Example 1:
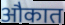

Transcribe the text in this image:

औकात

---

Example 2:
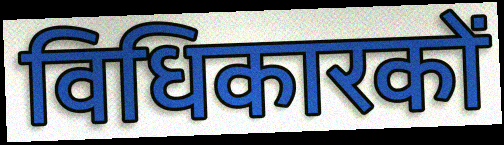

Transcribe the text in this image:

विधिकारकों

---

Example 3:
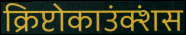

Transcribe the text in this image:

क्रिप्टोकाउंक्शंस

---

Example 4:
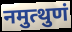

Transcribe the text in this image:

नमुत्थुणं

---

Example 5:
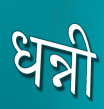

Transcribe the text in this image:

धन्नी